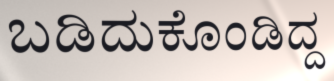
ಬಡಿದುಕೊಂಡಿದ್ದ